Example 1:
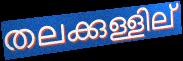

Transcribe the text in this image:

തലക്കുള്ളില്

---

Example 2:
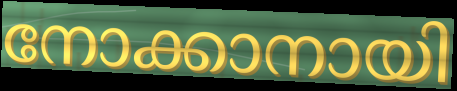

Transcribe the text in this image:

നോക്കാനായി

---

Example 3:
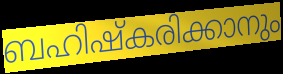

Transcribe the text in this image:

ബഹിഷ്കരിക്കാനും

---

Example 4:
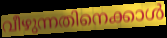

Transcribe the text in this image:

വീഴുന്നതിനെക്കാൾ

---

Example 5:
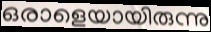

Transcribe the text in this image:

ഒരാളെയായിരുന്നു